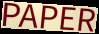
PAPER